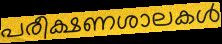
പരീക്ഷണശാലകൾ